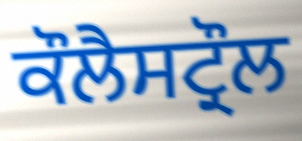
ਕੌਲੈਸਟ੍ਰੌਲ